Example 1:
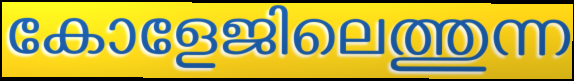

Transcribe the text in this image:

കോളേജിലെത്തുന്ന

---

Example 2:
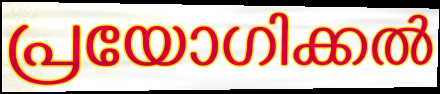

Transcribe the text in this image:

പ്രയോഗിക്കൽ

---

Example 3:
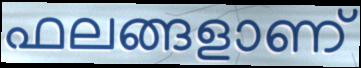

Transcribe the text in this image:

ഫലങ്ങളാണ്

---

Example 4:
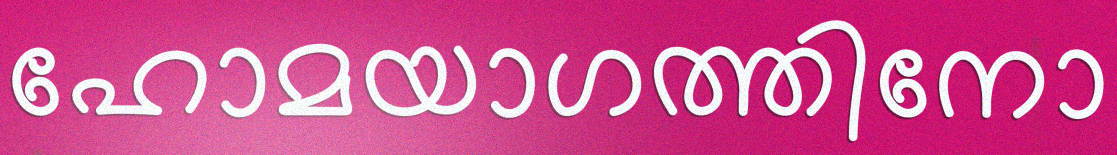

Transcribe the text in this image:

ഹോമയാഗത്തിനോ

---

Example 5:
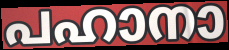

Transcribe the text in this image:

പഹാനാ